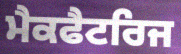
ਮੈਕਫੈਟਰਿਜ